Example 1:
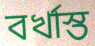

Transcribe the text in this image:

বৰ্খাস্ত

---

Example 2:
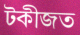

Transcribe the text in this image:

টকীজত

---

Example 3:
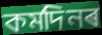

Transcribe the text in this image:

কৰ্মদিনৰ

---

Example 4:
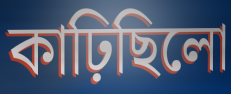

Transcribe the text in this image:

কাঢ়িছিলো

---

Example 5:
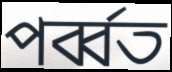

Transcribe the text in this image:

পৰ্ব্বত